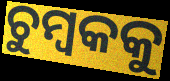
ଚୁମ୍ବକକୁ